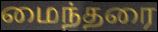
மைந்தரை